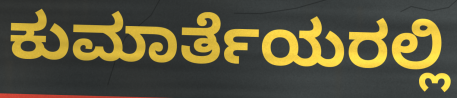
ಕುಮಾರ್ತೆಯರಲ್ಲಿ